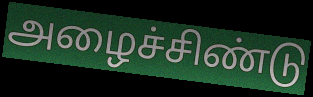
அழைச்சிண்டு